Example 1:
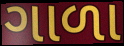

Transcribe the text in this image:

ગાળા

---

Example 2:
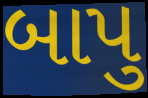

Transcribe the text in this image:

બાપુ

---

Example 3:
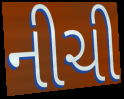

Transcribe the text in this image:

નીચી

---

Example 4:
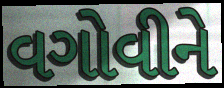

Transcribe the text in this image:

વગોવીને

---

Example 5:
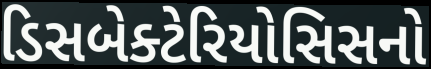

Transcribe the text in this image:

ડિસબેક્ટેરિયોસિસનો